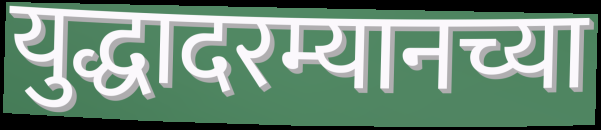
युद्धादरम्यानच्या